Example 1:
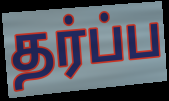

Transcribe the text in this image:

தர்ப்ப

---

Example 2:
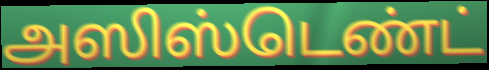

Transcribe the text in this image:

அஸிஸ்டெண்ட்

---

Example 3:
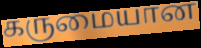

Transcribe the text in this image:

கருமையான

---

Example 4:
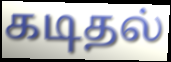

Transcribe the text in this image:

கடிதல்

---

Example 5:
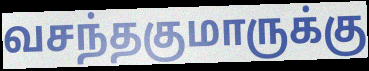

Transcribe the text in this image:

வசந்தகுமாருக்கு